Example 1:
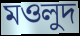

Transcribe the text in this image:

মওলুদ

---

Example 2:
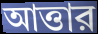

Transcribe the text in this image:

আত্তার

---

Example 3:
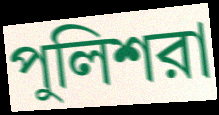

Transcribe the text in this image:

পুলিশরা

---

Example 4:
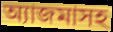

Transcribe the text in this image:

অ্যাজমাসহ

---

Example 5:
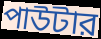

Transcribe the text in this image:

পাউটার